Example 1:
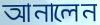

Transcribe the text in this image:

আনালেন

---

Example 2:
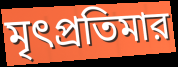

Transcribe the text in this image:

মৃৎপ্রতিমার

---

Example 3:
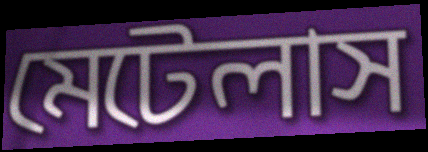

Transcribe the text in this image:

মেটেলাস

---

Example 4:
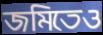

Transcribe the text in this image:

জমিতেও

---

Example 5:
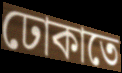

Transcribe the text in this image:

ঢোকাতে